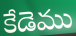
కేడెము